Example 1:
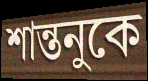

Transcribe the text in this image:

শান্তনুকে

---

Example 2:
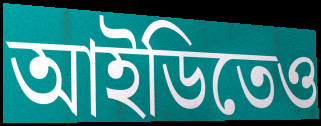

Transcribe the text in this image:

আইডিতেও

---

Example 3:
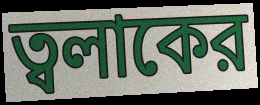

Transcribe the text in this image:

ত্বলাকের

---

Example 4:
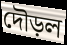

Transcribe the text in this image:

দৌড়ল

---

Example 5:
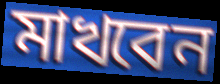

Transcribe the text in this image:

মাখবেন